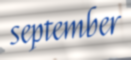
september